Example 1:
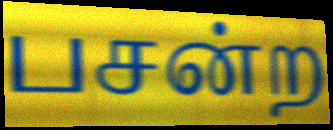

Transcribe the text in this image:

பசன்ற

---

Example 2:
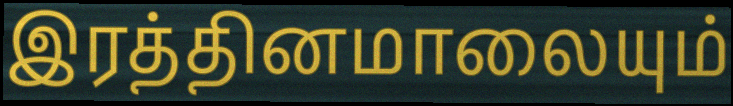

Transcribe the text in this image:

இரத்தினமாலையும்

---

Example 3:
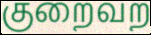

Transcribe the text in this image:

குறைவற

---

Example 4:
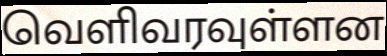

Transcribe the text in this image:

வெளிவரவுள்ளன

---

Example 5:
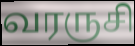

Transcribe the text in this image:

வரருசி